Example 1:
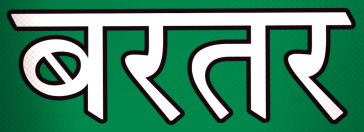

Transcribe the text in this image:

बरतर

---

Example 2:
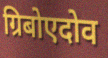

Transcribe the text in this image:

ग्रिबोएदोव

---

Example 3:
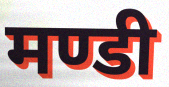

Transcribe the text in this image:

मण्डी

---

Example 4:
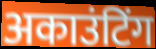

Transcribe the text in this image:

अकाउंटिंग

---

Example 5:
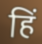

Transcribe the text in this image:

हिं